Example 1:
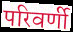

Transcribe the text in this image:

परिवर्णी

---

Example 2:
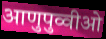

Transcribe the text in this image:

आणुपुव्वीओ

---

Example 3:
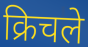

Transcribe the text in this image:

क्रिचले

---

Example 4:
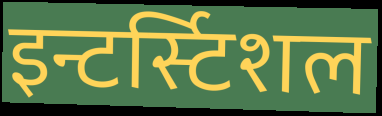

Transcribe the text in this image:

इन्टर्स्टिशल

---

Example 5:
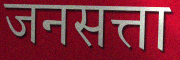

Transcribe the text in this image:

जनसत्ता